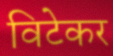
विटेकर